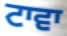
ਟਾਵਾ